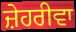
ਜ਼ੇਹਰੀਵਾ